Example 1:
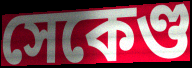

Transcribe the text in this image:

সেকেণ্ড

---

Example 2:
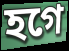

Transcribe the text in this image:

হগে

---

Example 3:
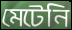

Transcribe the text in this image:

মেটেনি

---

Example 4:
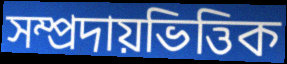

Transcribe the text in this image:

সম্প্রদায়ভিত্তিক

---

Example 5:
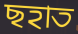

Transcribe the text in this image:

ছহাত